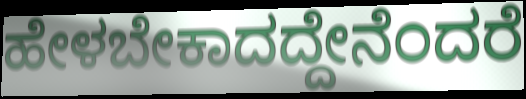
ಹೇಳಬೇಕಾದದ್ದೇನೆಂದರೆ